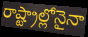
రాష్ట్రాల్లోనైనా